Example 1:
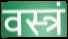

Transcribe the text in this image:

वस्त्रं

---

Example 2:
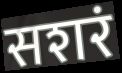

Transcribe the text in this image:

सशरं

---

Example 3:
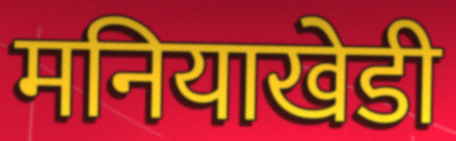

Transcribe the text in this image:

मनियाखेडी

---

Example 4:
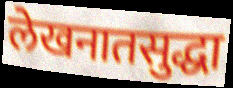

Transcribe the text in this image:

लेखनातसुद्धा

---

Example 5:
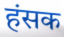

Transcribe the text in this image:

हंसक